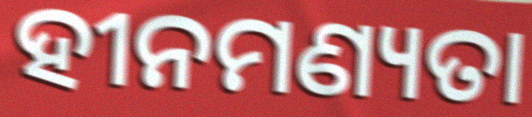
ହୀନମଣ୍ୟତା